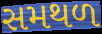
સમથળ